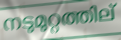
നടുമുറ്റത്തില്